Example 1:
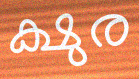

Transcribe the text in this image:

ക്ഷുര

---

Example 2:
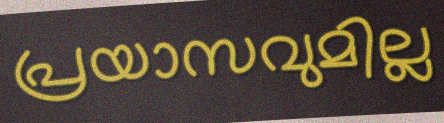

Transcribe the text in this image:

പ്രയാസവുമില്ല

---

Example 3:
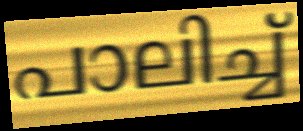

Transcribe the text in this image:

പാലിച്ച്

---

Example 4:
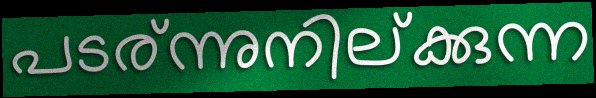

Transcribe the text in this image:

പടര്ന്നുനില്ക്കുന്ന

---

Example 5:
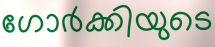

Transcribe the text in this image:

ഗോർക്കിയുടെ